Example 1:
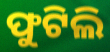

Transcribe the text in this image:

ଫୁଟିଲି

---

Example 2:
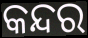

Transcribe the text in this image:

କନ୍ଦର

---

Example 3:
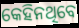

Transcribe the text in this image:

କେହିନଥିବେ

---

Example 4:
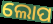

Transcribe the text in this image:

ଲୋପ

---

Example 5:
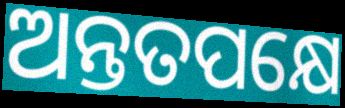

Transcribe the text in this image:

ଅନ୍ତତପକ୍ଷେ